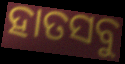
ହାତସବୁ